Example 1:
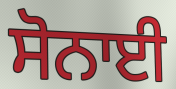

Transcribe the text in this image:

ਸੋਨਾਈ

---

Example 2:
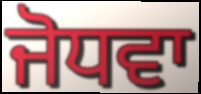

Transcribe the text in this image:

ਜੋਧਵਾ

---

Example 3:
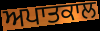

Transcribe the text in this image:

ਅਪਾਤਕਾਲ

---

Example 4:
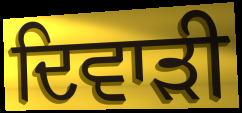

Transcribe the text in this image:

ਦਿਵਾੜੀ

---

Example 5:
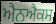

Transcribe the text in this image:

ਐਨਐਕਸ